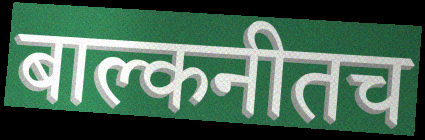
बाल्कनीतच